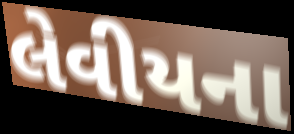
લેવીયના